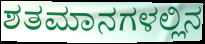
ಶತಮಾನಗಳಲ್ಲಿನ